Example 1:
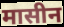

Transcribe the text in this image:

मासीन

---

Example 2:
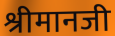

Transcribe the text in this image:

श्रीमानजी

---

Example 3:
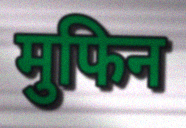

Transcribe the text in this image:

मुफिन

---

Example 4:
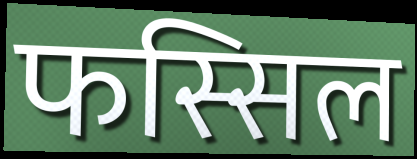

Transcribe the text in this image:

फस्सिल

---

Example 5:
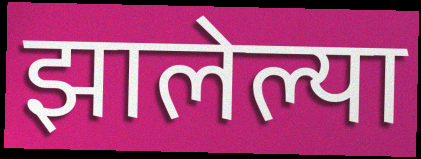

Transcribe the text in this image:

झालेल्या